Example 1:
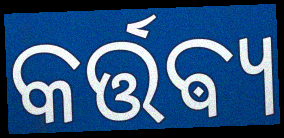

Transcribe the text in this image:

କର୍ତ୍ତଵ୍ୟ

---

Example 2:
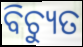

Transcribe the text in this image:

ବିଚ୍ୟୁତ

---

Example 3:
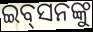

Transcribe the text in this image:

ଇବ୍‌ସନଙ୍କୁ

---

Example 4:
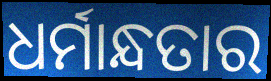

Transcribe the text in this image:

ଧର୍ମାନ୍ଧତାର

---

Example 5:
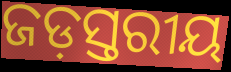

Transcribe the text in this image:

ଜଡ଼ସ୍ତରୀୟ